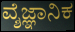
ವ್ಶೆಜ್ಞಾನಿಕ